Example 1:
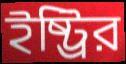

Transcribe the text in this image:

ইষ্ট্রির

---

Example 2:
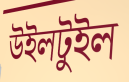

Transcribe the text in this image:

উইলটুইল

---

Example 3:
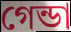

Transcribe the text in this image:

গেন্ডা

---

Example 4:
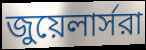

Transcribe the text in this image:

জুয়েলার্সরা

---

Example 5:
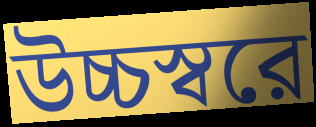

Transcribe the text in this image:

উচ্চস্বরে